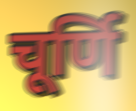
चूर्णि